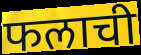
फलाची